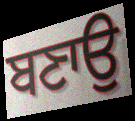
ਬਣਾਉ